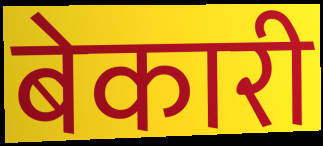
बेकारी